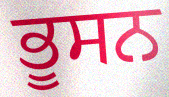
ਭੂਸਨ